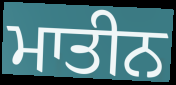
ਮਾਤੀਨ